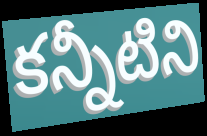
కన్నీటిని